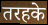
तरहके